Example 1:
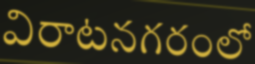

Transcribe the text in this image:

విరాటనగరంలో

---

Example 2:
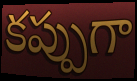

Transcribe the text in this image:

కప్పుగా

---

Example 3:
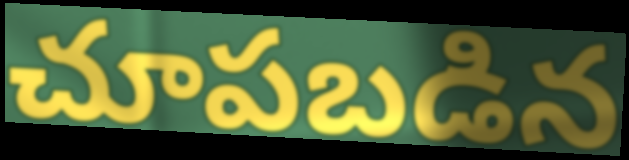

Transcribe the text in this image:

చూపబడిన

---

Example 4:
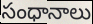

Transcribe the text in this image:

సంధానాలు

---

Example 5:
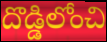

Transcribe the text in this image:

దొడ్డిలోంచి